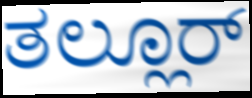
ತಲ್ಲೂರ್